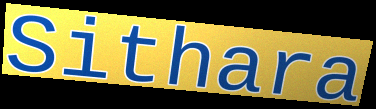
Sithara